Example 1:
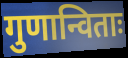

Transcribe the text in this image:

गुणान्विताः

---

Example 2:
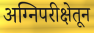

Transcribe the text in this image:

अग्निपरीक्षेतून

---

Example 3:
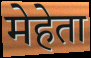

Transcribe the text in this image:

मेहेता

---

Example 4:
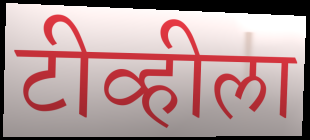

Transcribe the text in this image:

टीव्हीला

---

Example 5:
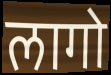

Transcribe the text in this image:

लागो